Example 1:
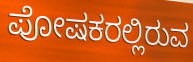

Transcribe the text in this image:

ಪೋಷಕರಲ್ಲಿರುವ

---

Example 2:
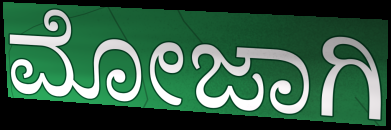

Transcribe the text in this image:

ಮೋಜಾಗಿ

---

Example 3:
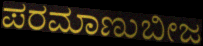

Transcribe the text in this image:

ಪರಮಾಣುಬೀಜ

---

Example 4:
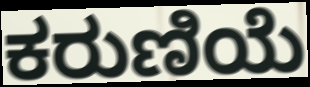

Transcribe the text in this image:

ಕರುಣಿಯೆ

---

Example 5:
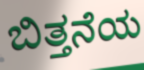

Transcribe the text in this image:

ಬಿತ್ತನೆಯ